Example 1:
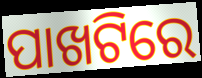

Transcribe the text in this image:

ପାଖଟିରେ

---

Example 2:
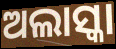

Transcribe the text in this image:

ଅଲାସ୍କା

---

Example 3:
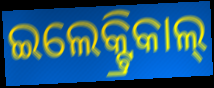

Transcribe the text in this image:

ଇଲେକ୍ଟ୍ରିକାଲ୍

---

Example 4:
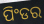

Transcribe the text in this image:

ପିଂଡର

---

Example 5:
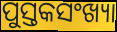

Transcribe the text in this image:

ପୁସ୍ତକସଂଖ୍ୟା